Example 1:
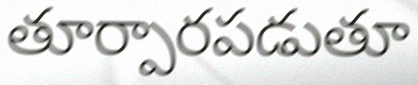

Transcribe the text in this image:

తూర్పారపడుతూ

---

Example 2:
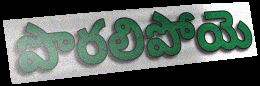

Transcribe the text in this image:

పొరలిపోయె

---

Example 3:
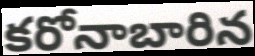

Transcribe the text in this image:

కరోనాబారిన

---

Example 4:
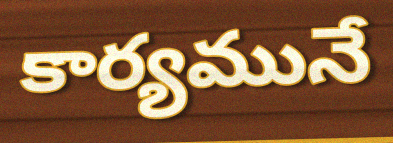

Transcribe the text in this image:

కార్యమునే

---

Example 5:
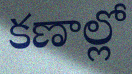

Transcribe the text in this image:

కణాల్లో